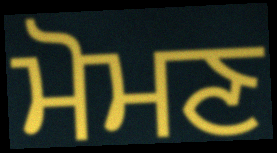
ਮੋਮਣ